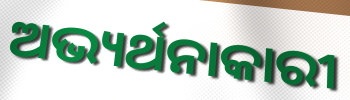
ଅଭ୍ୟର୍ଥନାକାରୀ